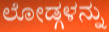
ಲೋಡ್ಗಳನ್ನು